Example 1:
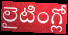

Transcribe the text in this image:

లైటింగ్లో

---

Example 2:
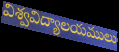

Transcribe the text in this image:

విశ్వవిద్యాలయములు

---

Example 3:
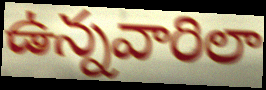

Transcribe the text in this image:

ఉన్నవారిలా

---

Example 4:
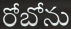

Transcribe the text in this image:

రోబోను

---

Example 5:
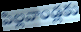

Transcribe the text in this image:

పిల్లవాండ్లకు